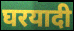
घरयादी